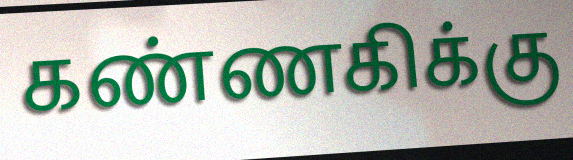
கண்ணகிக்கு